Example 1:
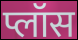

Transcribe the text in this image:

प्लॉस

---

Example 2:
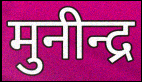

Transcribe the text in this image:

मुनीन्द्र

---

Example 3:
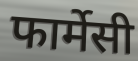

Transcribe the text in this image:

फार्मेसी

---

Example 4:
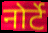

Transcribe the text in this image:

नोर्टे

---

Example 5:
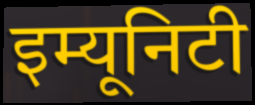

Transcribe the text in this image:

इम्यूनिटी